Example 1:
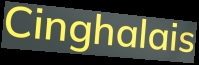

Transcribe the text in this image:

Cinghalais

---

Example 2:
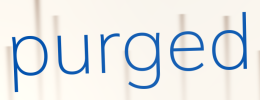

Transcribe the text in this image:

purged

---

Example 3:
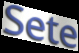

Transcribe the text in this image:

Sete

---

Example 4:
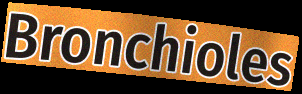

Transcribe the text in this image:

Bronchioles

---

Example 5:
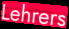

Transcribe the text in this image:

Lehrers